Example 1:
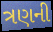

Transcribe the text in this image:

ત્રણની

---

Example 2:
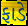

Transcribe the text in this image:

ફાડે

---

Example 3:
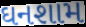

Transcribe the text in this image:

ઘનશામ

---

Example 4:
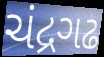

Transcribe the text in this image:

ચંદ્રગઢ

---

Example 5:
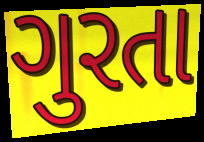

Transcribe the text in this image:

ગુરતા